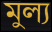
মুল্য